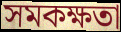
সমকক্ষতা